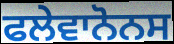
ਫਲੇਵਾਨੋਨਸ